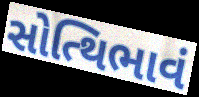
સોત્થિભાવં